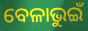
ବେଳାଭୁଇଁ